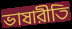
ভাষারীতি